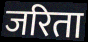
जरिता